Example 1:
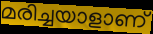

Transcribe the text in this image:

മരിച്ചയാളാണ്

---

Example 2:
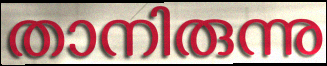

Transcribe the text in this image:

താനിരുന്നു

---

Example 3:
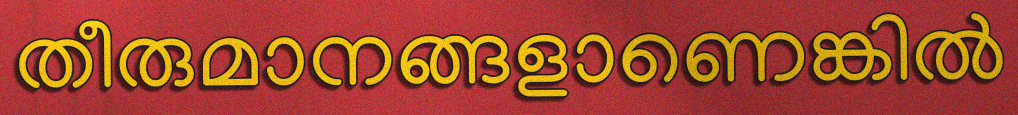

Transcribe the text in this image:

തീരുമാനങ്ങളാണെങ്കിൽ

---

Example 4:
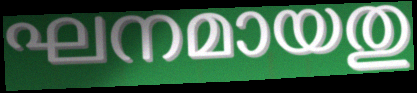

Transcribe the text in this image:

ഘനമായതു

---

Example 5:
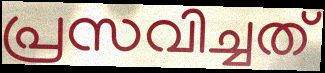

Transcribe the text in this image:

പ്രസവിച്ചത്